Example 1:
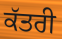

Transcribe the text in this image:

ਕੱਤਰੀ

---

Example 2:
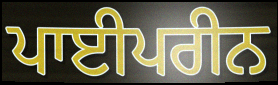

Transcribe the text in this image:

ਪਾਈਪਰੀਨ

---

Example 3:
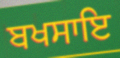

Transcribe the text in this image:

ਬਖਸਾਇ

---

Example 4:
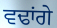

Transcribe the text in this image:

ਵਢਾਂਗੇ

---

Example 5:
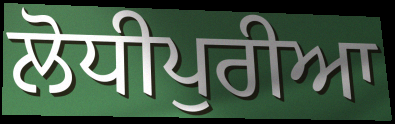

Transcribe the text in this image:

ਲੋਧੀਪੁਰੀਆ